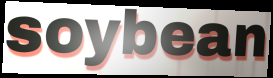
soybean